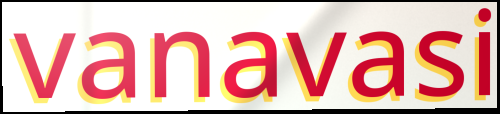
vanavasi